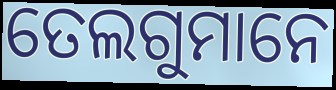
ତେଲଗୁମାନେ